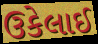
ઉકેલાઈ